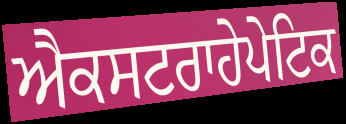
ਐਕਸਟਰਾਹੇਪੇਟਿਕ